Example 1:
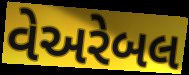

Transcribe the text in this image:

વેઅરેબલ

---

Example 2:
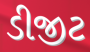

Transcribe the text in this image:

ડીજીટ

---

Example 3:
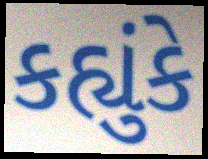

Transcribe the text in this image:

કહ્યુંકે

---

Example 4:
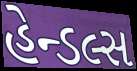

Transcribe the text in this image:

હેન્ડલ્સ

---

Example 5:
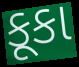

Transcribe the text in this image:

કૂકા